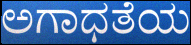
ಅಗಾಧತೆಯ